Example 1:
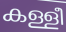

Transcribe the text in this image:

കള്ളീ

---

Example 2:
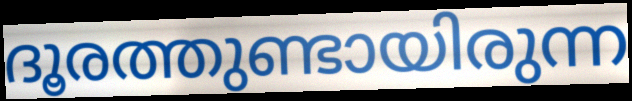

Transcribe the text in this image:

ദൂരത്തുണ്ടായിരുന്ന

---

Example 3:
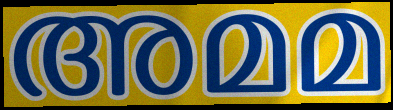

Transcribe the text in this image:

അമമ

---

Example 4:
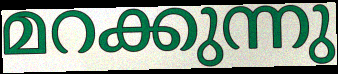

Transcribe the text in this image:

മറക്കുന്നു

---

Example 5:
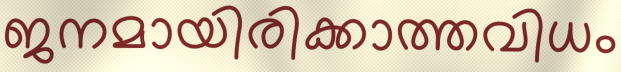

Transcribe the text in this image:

ജനമായിരിക്കാത്തവിധം